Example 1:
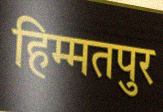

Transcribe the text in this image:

हिम्मतपुर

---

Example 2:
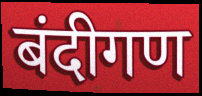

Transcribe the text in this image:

बंदीगण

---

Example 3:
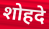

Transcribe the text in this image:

शोहदे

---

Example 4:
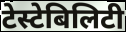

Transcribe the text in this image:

टेस्टेबिलिटी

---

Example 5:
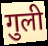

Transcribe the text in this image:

गुली